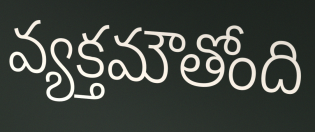
వ్యక్తమౌతోంది